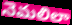
నెమలిలా